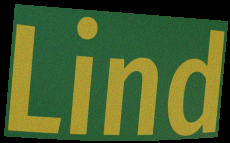
Lind